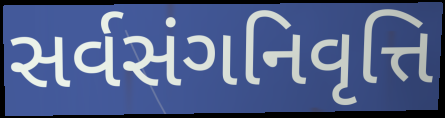
સર્વસંગનિવૃત્તિ